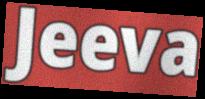
Jeeva